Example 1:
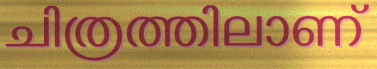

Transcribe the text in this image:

ചിത്രത്തിലാണ്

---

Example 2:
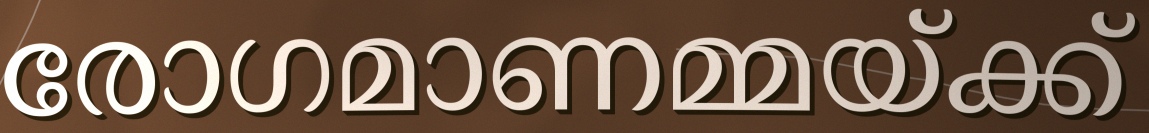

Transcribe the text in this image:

രോഗമാണമ്മയ്ക്ക്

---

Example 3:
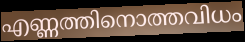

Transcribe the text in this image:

എണ്ണത്തിനൊത്തവിധം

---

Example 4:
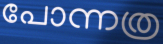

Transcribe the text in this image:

പോന്നത്ര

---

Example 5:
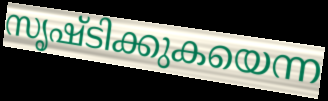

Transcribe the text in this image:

സൃഷ്ടിക്കുകയെന്ന